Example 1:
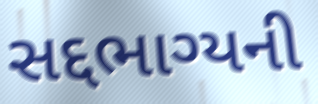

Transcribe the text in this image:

સદ્દભાગ્યની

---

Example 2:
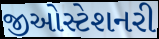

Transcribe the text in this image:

જીઓસ્ટેશનરી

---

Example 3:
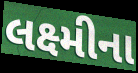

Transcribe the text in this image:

લક્ષ્મીના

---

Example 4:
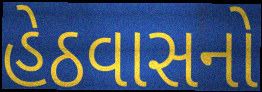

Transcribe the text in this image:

હેઠવાસનો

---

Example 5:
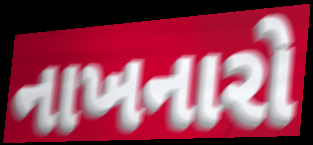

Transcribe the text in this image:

નાખનારો